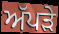
ਅੱਪੜੇ